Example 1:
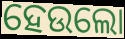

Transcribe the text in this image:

ହେଉଲୋ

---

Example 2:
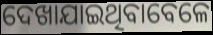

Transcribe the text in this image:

ଦେଖାଯାଇଥିବାବେଳେ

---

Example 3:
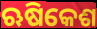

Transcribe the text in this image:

ଋଷିକେଶ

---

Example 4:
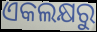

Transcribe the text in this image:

ଏକଲକ୍ଷରୁ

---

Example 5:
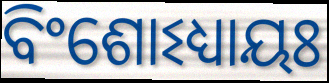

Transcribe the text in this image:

ବିଂଶୋଽଧ୍ୟାୟଃ